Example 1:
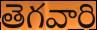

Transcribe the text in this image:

తెగవారి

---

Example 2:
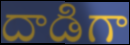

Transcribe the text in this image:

దాడిగా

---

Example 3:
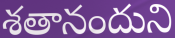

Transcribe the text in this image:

శతానందుని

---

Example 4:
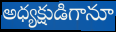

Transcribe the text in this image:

అధ్యక్షుడిగానూ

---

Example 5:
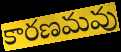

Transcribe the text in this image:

కారణమవు